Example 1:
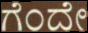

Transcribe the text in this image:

ಗೆಂದೇ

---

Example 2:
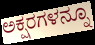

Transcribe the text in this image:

ಅಕ್ಷರಗಳನ್ನೂ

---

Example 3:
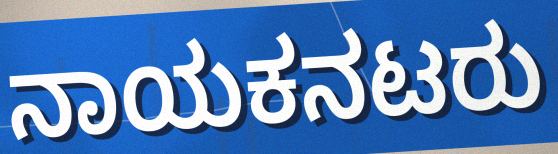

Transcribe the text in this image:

ನಾಯಕನಟರು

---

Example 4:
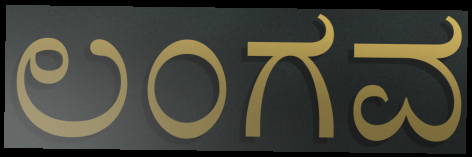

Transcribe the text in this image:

ಲಂಗವ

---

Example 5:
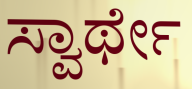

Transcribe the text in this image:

ಸ್ವಾರ್ಥೇ